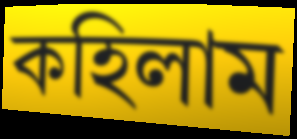
কহিলাম